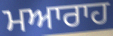
ਮਆਰਾਹ